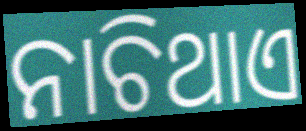
ନାଚିଥାଏ